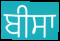
ਬੀਸਾ